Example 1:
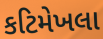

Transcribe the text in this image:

કટિમેખલા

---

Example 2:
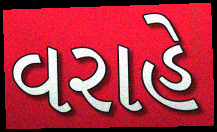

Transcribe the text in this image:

વરાહે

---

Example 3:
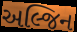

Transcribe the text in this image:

અલ્જિન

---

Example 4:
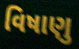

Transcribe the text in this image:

વિષાણુ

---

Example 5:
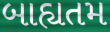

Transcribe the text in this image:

બાહ્યતમ